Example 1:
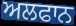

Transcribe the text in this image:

ਅਲਫਾਨ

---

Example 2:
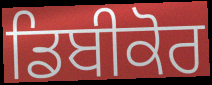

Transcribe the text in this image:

ਡਿਬੀਕੋਰ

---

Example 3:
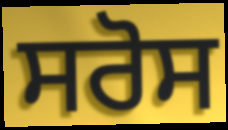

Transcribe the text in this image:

ਸਰੋਸ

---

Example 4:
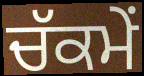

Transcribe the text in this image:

ਚੱਕਮੇਂ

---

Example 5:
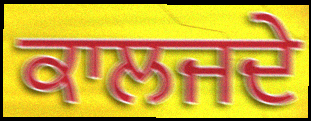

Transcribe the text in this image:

ਕਾਲਜਦੇ